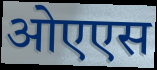
ओएएस